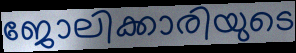
ജോലിക്കാരിയുടെ